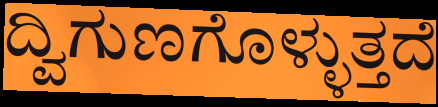
ದ್ವಿಗುಣಗೊಳ್ಳುತ್ತದೆ